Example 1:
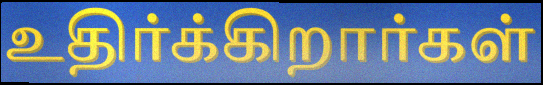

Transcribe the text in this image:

உதிர்க்கிறார்கள்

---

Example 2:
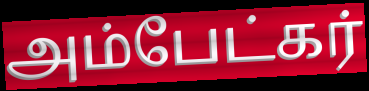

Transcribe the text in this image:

அம்பேட்கர்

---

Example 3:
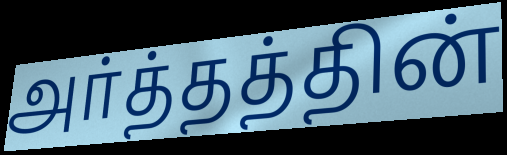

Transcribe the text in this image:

அர்த்தத்தின்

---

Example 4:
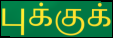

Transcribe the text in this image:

புக்குக்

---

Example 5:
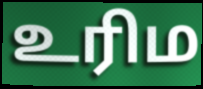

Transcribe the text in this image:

உரிம